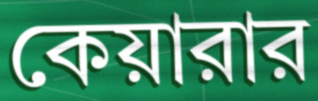
কেয়ারার